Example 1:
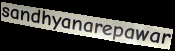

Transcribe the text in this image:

sandhyanarepawar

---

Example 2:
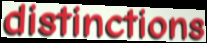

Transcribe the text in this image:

distinctions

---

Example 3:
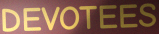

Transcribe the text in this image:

DEVOTEES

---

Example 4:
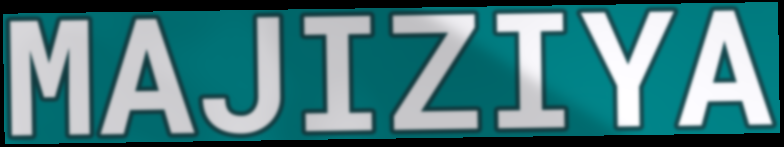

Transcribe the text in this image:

MAJIZIYA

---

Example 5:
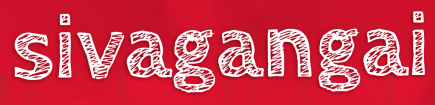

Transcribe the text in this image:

sivagangai